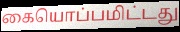
கையொப்பமிட்டது